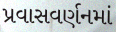
પ્રવાસવર્ણનમાં